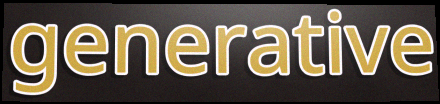
generative